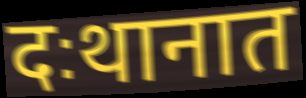
दःथानात